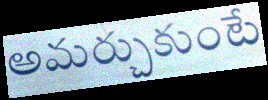
అమర్చుకుంటే